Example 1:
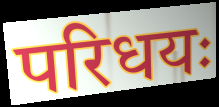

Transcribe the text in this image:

परिधयः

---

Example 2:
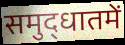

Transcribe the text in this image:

समुद्धातमें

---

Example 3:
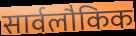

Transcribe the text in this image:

सार्वलौकिक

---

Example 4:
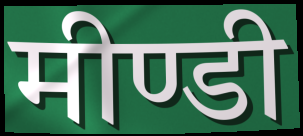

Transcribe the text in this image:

मीण्‍डी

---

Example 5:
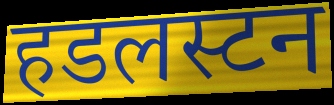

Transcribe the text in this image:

हडलस्टन